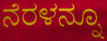
ನೆರಳನ್ನೂ